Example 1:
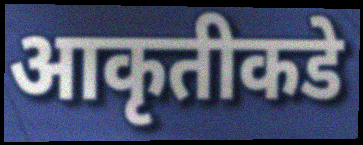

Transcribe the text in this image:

आकृतीकडे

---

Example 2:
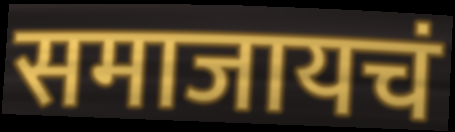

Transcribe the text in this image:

समाजायचं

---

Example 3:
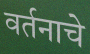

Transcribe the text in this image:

वर्तनाचे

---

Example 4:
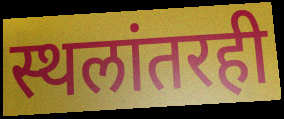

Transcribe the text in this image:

स्थलांतरही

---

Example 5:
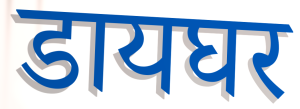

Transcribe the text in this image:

डायघर